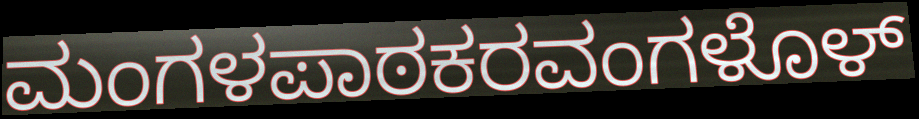
ಮಂಗಳಪಾಠಕರವಂಗಳೊಳ್